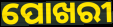
ପୋଖରୀ